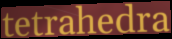
tetrahedra